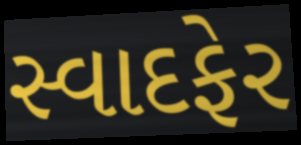
સ્વાદફેર